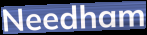
Needham